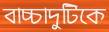
বাচ্চাদুটিকে